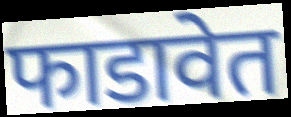
फाडावेत